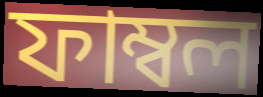
ফাম্বল